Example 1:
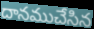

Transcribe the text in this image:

దానముచేసిన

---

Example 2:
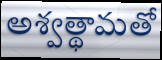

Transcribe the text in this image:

అశ్వత్థామతో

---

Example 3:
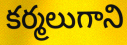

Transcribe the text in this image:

కర్మలుగాని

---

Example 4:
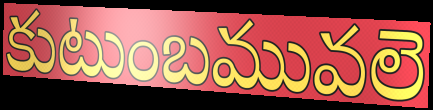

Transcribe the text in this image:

కుటుంబమువలె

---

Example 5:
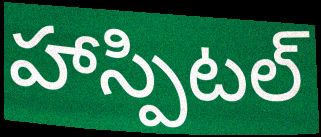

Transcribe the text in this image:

హాస్పిటల్